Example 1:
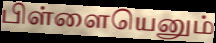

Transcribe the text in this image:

பிள்ளையெனும்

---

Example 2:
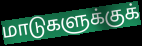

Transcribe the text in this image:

மாடுகளுக்குக்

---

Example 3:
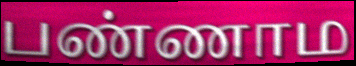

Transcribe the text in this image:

பண்ணாம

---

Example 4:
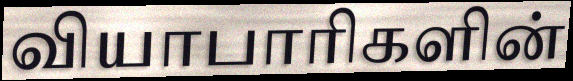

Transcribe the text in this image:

வியாபாரிகளின்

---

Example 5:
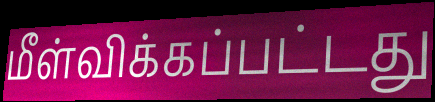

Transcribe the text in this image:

மீள்விக்கப்பட்டது